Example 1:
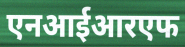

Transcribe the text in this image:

एनआईआरएफ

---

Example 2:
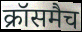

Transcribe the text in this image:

क्रॉसमैच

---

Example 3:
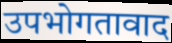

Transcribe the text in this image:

उपभोगतावाद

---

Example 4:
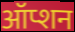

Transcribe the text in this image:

ऑप्शन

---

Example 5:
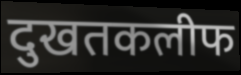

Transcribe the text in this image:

दुखतकलीफ